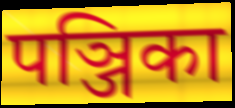
पञ्जिका